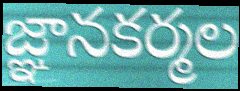
జ్ఞానకర్మల